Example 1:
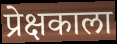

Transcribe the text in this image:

प्रेक्षकाला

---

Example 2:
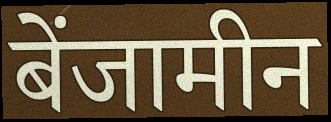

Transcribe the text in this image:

बेंजामीन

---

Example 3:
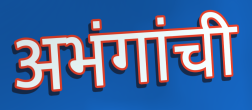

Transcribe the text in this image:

अभंगांची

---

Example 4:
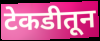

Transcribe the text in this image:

टेकडीतून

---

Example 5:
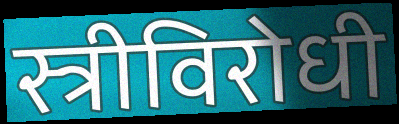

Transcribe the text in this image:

स्त्रीविरोधी